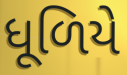
ધૂળિયે